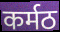
कर्मठ